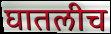
घातलीच